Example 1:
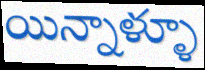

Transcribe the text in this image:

యిన్నాళ్ళూ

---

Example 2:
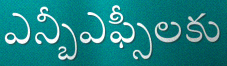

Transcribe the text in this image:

ఎన్బీఎఫ్సీలకు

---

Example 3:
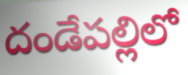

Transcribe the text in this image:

దండేపల్లిలో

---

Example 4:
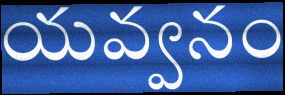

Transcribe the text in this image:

యవ్వనం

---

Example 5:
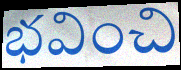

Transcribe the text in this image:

భవించి